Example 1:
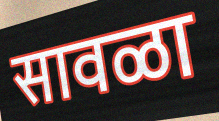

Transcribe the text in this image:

सावळा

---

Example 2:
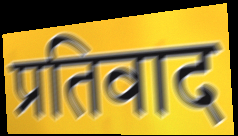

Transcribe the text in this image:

प्रतिवाद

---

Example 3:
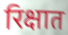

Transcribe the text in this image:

रिक्षात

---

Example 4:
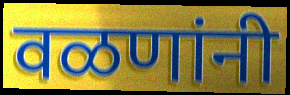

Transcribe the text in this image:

वळणांनी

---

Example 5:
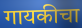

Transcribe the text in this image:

गायकीचा